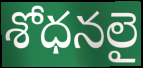
శోధనలై